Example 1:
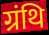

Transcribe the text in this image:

ग्रंथि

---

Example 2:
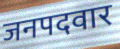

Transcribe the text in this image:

जनपदवार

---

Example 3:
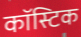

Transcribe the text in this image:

कॉस्टिक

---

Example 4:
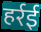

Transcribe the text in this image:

हर्रई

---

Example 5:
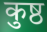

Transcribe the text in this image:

कुष्ठ